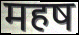
महष